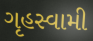
ગૃહસ્વામી